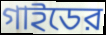
গাইডের